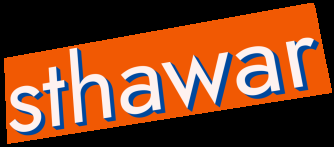
sthawar